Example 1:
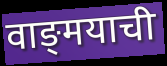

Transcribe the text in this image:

वाङ्मयाची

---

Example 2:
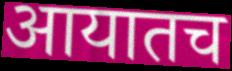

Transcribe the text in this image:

आयातच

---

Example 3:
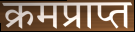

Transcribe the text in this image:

क्रमप्राप्‍त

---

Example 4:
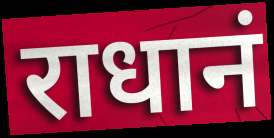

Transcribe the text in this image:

राधानं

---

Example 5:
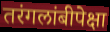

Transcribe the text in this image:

तरंगलांबीपेक्षा